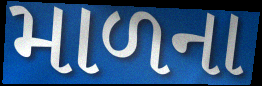
માળના